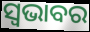
ସ୍ୱଭାବର